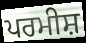
ਪਰਮੀਸ਼